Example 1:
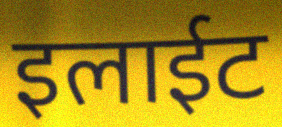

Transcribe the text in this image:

इलाईट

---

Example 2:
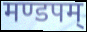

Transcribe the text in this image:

मण्डपम्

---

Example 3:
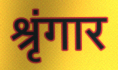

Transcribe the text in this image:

श्रृंगार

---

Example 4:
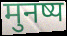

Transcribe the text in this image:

मुनष्य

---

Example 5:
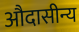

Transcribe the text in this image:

औदासीन्य